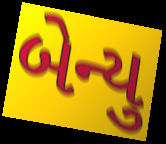
બેન્યુ